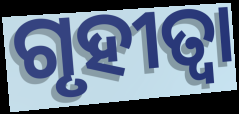
ଗୃହୀତ୍ଵା